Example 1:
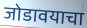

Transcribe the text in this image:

जोडावयाचा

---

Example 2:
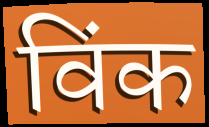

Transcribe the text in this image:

विंक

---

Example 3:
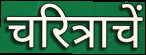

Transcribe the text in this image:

चरित्राचें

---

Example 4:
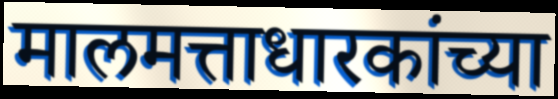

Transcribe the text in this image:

मालमत्ताधारकांच्या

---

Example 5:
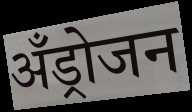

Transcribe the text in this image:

अँड्रोजन